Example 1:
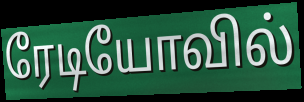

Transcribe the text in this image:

ரேடியோவில்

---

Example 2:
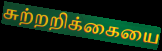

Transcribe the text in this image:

சுற்றறிக்கையை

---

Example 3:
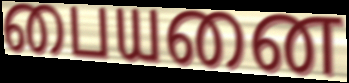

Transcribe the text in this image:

பையனை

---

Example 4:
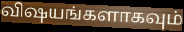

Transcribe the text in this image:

விஷயங்களாகவும்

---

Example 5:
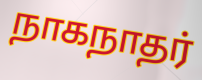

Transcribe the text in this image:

நாகநாதர்